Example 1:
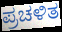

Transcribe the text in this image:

ಪ್ರಚಳಿತ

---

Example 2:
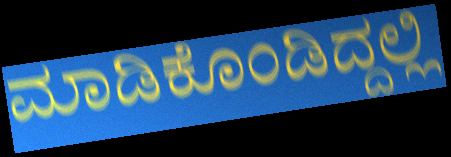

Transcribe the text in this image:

ಮಾಡಿಕೊಂಡಿದ್ದಲ್ಲಿ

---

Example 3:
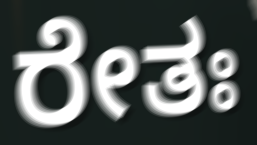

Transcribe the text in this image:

ರೇತಃ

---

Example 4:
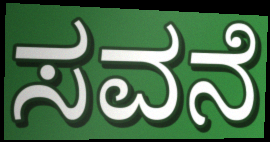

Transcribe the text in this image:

ಸವನೆ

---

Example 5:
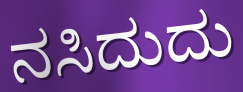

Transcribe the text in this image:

ನಸಿದುದು